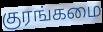
குரங்கமை